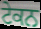
ਟੇਕਨ